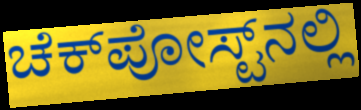
ಚೆಕ್‌ಪೋಸ್ಟ್‌ನಲ್ಲಿ